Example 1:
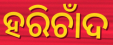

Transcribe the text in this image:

ହରିଚାଁଦ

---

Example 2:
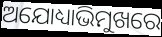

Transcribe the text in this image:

ଅଯୋଧ୍ୟାଭିମୁଖରେ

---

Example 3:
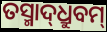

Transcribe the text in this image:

ତସ୍ମାଦ୍‌ଧ୍ରୁବମ୍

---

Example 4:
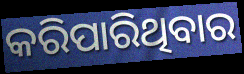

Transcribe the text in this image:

କରିପାରିଥିବାର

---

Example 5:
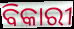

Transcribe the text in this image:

ବିକାରୀ